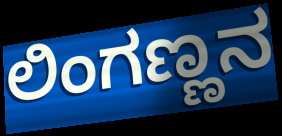
ಲಿಂಗಣ್ಣನ